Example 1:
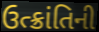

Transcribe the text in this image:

ઉત્ક્રાંતિની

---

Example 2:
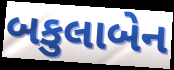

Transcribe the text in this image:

બકુલાબેન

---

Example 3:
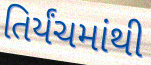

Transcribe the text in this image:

તિર્યંચમાંથી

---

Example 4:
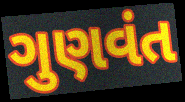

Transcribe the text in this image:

ગુણવંત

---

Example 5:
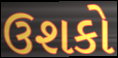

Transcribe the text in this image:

ઉશકો